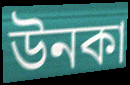
উনকা